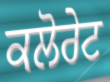
ਕਲੋਰੇਟ